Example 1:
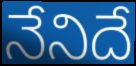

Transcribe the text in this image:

నేనిదే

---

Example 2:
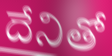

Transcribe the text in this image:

దేనితో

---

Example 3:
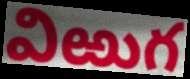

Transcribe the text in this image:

విఱుగ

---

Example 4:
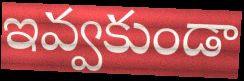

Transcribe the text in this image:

ఇవ్వకుండా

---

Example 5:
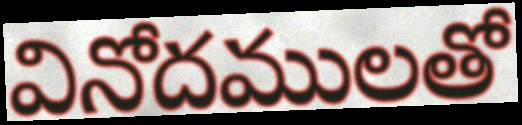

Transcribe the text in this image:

వినోదములతో